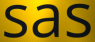
sas